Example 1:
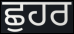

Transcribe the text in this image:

ਛੁਹਰ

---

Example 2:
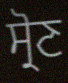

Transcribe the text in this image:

ਸ੍ਰੋਣ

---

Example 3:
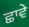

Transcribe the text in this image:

ਛਾਵੇ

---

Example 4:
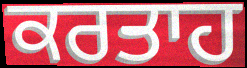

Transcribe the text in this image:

ਕਰਤਾਹ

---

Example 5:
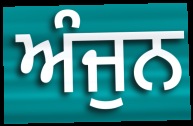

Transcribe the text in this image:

ਅੰਜੁਨ